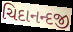
ચિદાનન્દજી